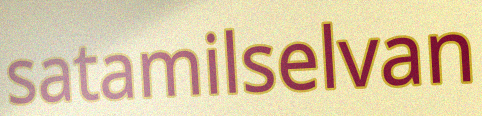
satamilselvan